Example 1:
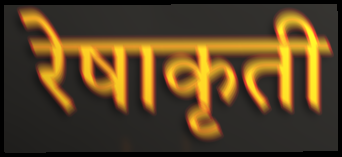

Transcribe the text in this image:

रेषाकृती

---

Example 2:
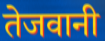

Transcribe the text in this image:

तेजवानी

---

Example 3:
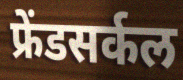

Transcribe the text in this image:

फ्रेंडसर्कल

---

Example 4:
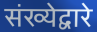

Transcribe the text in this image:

संख्येद्वारे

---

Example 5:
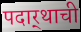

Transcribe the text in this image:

पदार्थाची